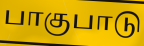
பாகுபாடு